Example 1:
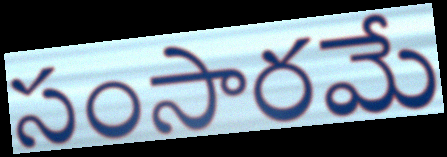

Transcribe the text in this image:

సంసారమే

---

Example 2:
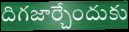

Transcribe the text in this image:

దిగజార్చేందుకు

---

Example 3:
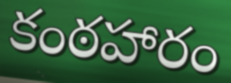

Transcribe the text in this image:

కంఠహారం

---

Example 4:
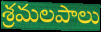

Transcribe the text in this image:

శ్రమలపాలు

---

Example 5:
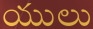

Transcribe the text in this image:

యులు